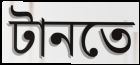
টানতে